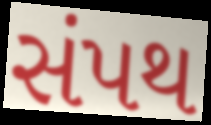
સંપથ